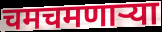
चमचमणाऱ्या